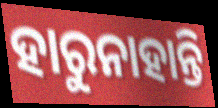
ହାରୁନାହାନ୍ତି